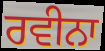
ਰਵੀਨਾ